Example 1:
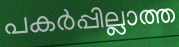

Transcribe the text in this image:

പകർപ്പില്ലാത്ത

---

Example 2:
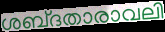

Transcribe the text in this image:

ശബ്‌ദതാരാവലി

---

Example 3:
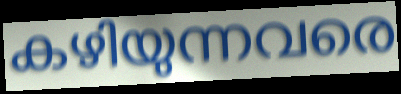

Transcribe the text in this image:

കഴിയുന്നവരെ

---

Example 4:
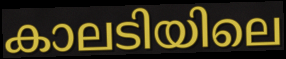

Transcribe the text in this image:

കാലടിയിലെ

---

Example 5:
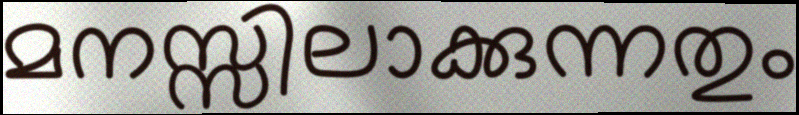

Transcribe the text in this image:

മനസ്സിലാക്കുന്നതും